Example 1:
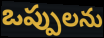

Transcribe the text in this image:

ఒప్పులను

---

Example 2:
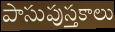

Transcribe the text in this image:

పాసుపుస్తకాలు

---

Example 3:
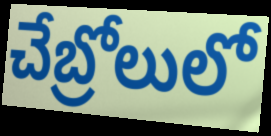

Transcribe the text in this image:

చేబ్రోలులో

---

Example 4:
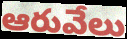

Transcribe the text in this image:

ఆరువేలు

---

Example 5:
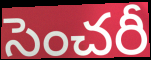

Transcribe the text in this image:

సెంచరీ